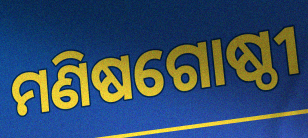
ମଣିଷଗୋଷ୍ଠୀ